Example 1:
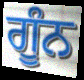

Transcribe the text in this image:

ਗੂੰਨ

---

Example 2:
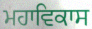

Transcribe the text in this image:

ਮਹਾਵਿਕਾਸ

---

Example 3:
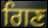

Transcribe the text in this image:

ਗਿਣ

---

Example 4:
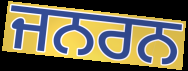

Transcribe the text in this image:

ਜਨਰਨ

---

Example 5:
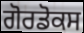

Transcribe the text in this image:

ਗੋਰਡੋਕਸ